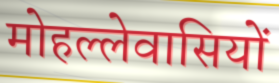
मोहल्लेवासियों